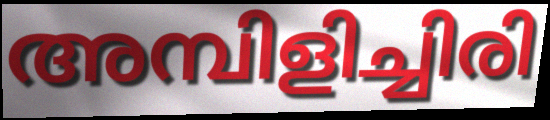
അമ്പിളിച്ചിരി